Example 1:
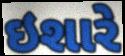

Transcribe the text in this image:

ઇશારે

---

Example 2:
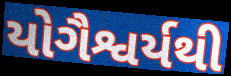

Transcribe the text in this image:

યોગૈશ્વર્યથી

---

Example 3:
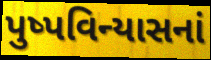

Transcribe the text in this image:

પુષ્પવિન્યાસનાં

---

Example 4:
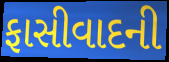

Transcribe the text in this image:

ફાસીવાદની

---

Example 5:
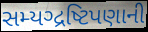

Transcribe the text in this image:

સમ્યગ્દ્રષ્ટિપણાની